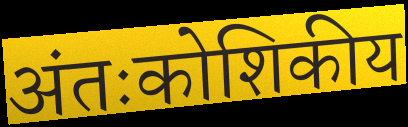
अंतःकोशिकीय